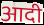
आदी